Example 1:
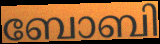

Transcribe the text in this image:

ബോബി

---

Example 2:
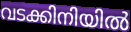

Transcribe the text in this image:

വടക്കിനിയിൽ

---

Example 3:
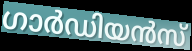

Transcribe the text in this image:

ഗാർഡിയൻസ്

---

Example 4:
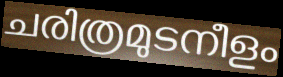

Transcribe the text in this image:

ചരിത്രമുടനീളം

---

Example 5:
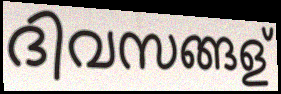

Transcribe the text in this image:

ദിവസങ്ങള്